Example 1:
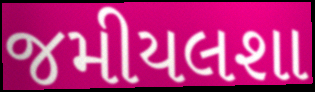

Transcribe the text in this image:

જમીયલશા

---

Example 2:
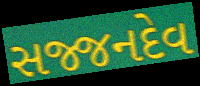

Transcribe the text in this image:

સજ્જનદેવ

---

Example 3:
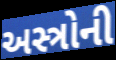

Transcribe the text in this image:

અસ્ત્રોની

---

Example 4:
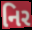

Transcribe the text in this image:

નિર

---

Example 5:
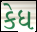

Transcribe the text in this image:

કેધ